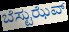
ಬೆಸ್ಟುಝೆವ್